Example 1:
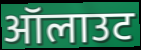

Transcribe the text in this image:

ऑलाउट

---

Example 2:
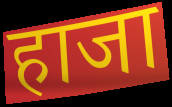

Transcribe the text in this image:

हाजा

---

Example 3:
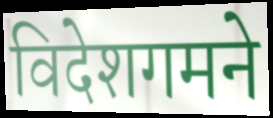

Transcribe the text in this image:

विदेशगमने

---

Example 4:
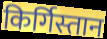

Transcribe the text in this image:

किर्गिस्‍तान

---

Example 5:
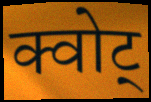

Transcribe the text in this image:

क्वोट्